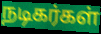
நடிகர்கள்